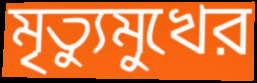
মৃত্যুমুখের